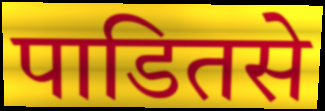
पाडितसे